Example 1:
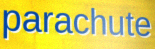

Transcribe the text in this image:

parachute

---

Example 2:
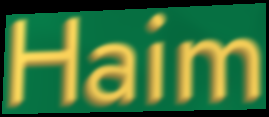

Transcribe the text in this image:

Haim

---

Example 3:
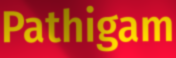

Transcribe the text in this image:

Pathigam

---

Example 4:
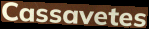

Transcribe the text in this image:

Cassavetes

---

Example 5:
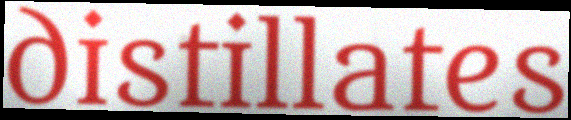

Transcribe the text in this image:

distillates